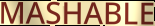
MASHABLE